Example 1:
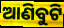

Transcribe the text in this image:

ଆଣିବୁଟି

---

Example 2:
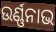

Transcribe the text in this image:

ଉର୍ଣ୍ଣନାଭ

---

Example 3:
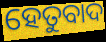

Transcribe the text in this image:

ହେତୁବାଦ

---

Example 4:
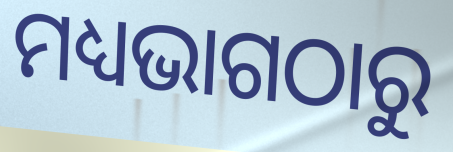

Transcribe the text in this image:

ମଧ୍ୟଭାଗଠାରୁ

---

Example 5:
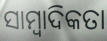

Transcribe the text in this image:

ସାମ୍ୱାଦିକତା